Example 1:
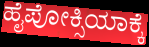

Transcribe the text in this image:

ಹೈಪೋಕ್ಸಿಯಾಕ್ಕೆ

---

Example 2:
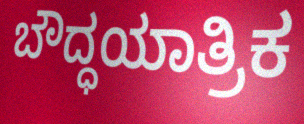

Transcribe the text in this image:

ಬೌದ್ಧಯಾತ್ರಿಕ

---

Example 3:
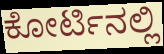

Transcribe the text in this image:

ಕೋರ್ಟಿನಲ್ಲಿ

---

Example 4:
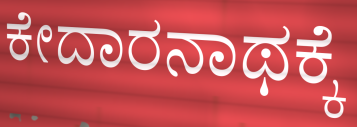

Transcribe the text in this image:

ಕೇದಾರನಾಥಕ್ಕೆ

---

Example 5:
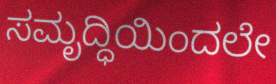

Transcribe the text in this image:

ಸಮೃದ್ಧಿಯಿಂದಲೇ